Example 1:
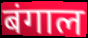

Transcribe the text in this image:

बंगाल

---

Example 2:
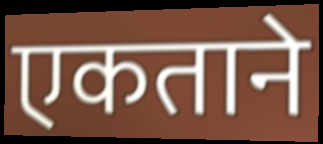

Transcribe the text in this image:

एकताने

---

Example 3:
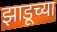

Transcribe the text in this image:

झाडूच्या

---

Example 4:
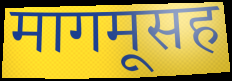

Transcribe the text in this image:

मागमूसह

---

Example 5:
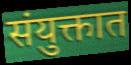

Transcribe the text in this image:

संयुक्तात